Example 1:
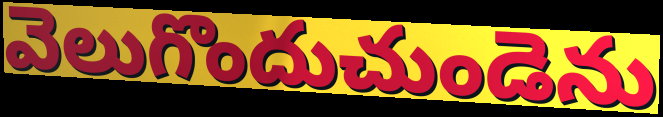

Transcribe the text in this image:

వెలుగొందుచుండెను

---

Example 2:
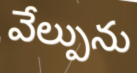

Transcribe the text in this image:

వేల్పును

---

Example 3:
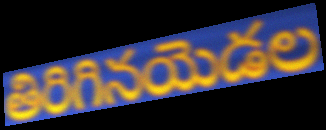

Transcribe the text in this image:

తిరిగినయెడల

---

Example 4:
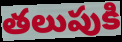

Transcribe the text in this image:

తలుపుకి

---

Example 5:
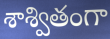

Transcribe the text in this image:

శాశ్వితంగా